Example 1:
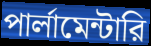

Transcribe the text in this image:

পার্লামেন্টারি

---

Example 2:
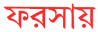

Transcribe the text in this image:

ফরসায়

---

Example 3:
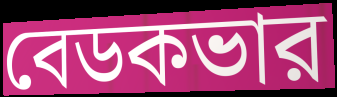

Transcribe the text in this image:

বেডকভার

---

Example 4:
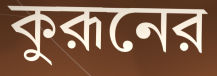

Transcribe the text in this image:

কুরূনের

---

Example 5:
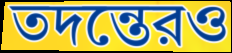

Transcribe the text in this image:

তদন্তেরও